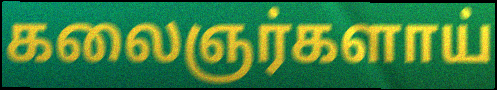
கலைஞர்களாய்